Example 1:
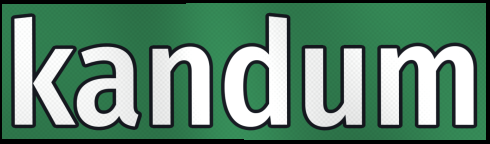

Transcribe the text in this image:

kandum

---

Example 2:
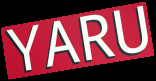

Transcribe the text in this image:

YARU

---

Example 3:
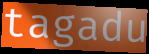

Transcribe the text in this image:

tagadu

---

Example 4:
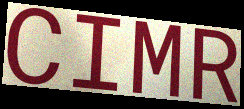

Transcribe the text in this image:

CIMR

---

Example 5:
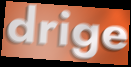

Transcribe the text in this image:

drige